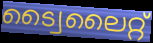
ട്വൈലൈറ്റ്